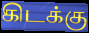
கிடக்கு